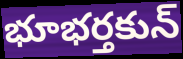
భూభర్తకున్